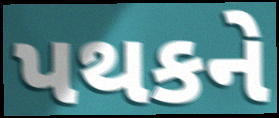
પથકને